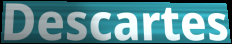
Descartes